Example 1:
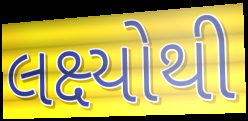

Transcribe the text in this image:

લક્ષ્યોથી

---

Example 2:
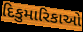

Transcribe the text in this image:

દિકુમારિકાઓ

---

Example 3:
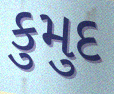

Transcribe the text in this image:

કુમુદ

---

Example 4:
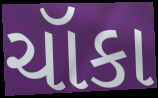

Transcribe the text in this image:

ચૉકા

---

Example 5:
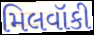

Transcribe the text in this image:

મિલવૉકી